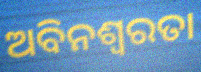
ଅବିନଶ୍ୱରତା